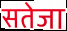
सतेजा